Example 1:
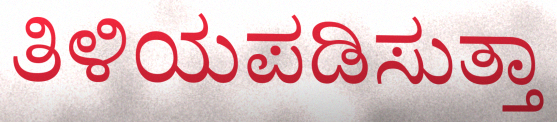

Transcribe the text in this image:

ತಿಳಿಯಪಡಿಸುತ್ತಾ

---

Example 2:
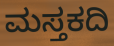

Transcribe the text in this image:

ಮಸ್ತಕದಿ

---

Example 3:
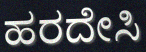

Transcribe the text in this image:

ಹರದೇಸಿ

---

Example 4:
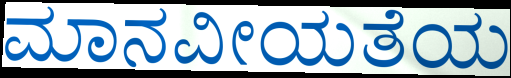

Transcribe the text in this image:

ಮಾನವೀಯತೆಯ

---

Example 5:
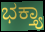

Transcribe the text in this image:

ಭಕ್ತ್ಯಾ